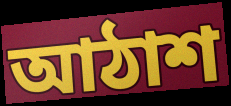
আঠাশ